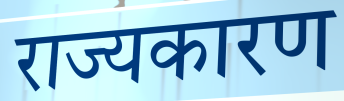
राज्यकारण